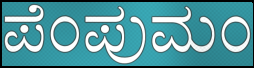
ಪೆಂಪುಮಂ